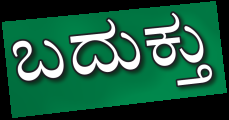
ಬದುಕ್ತು